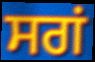
ਸਗਂ